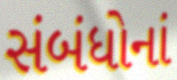
સંબંધોનાં